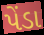
પેંડા